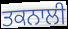
ਤਕਨਾਲੀ